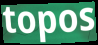
topos